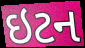
ઇટન